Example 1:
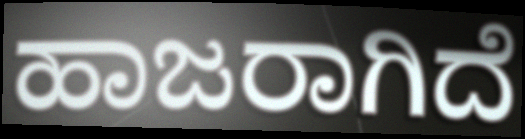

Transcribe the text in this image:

ಹಾಜರಾಗಿದೆ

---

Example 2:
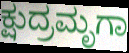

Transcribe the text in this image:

ಕ್ಷುದ್ರಮೃಗಾ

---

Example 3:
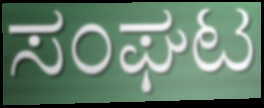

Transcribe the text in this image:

ಸಂಘಟ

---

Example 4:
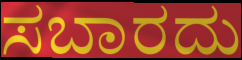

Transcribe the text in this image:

ಸಬಾರದು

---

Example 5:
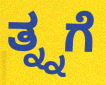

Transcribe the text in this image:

ತ್ನ್ನಗೆ